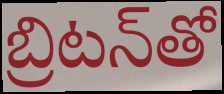
బ్రిటన్‌తో